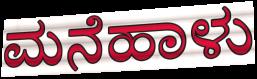
ಮನೆಹಾಳು